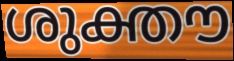
ശുക്തൗ